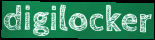
digilocker